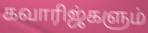
கவாரிஜ்களும்